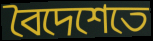
বৈদেশেতে